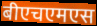
बीएचएमएस